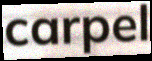
carpel